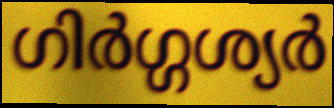
ഗിർഗ്ഗശ്യർ